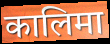
कालिमा